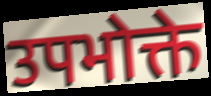
उपभोक्ते